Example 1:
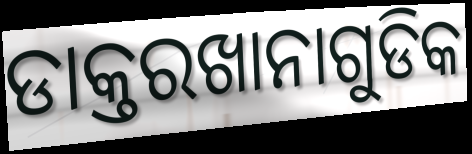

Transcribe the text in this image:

ଡାକ୍ତରଖାନାଗୁଡିକ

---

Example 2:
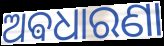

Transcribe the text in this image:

ଅଵଧାରଣା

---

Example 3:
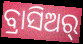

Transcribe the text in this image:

ବ୍ରାସିଅର୍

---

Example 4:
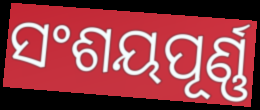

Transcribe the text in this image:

ସଂଶୟପୂର୍ଣ୍ଣ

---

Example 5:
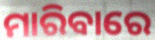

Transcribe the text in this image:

ମାରିବାରେ